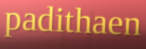
padithaen